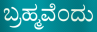
ಬ್ರಹ್ಮವೆಂದು